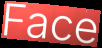
Face